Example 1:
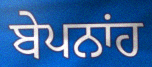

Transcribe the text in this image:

ਬੇਪਨਾਂਹ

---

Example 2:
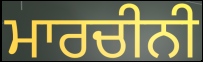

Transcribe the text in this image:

ਮਾਰਚੀਨੀ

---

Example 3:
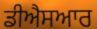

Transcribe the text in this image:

ਡੀਐਸਆਰ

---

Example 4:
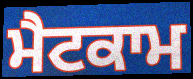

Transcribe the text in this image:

ਮੈਟਕਾਮ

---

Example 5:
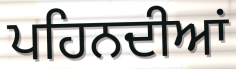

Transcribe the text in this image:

ਪਹਿਨਦੀਆਂ